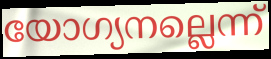
യോഗ്യനല്ലെന്ന്